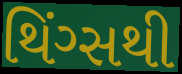
થિંગ્સથી